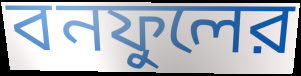
বনফুলের